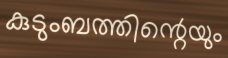
കുടുംബത്തിന്റെയും